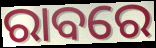
ରାବରେ